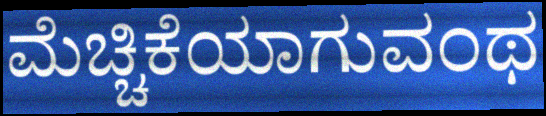
ಮೆಚ್ಚಿಕೆಯಾಗುವಂಥ